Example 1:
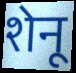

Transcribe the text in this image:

शेनू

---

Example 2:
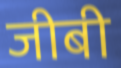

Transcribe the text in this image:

जीबी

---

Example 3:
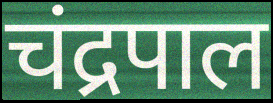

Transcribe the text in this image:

चंद्रपाल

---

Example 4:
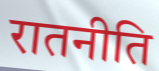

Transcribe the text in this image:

रातनीति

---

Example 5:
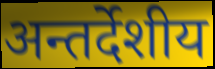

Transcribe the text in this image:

अन्तर्देशीय